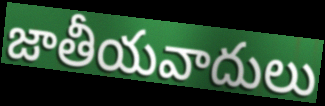
జాతీయవాదులు